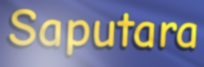
Saputara